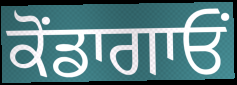
ਕੋਂਡਾਗਾਓਂ